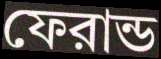
ফেরান্ড